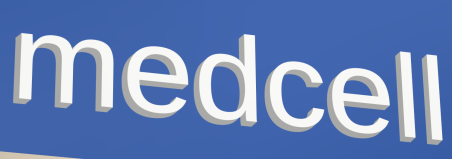
medcell